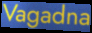
Vagadna